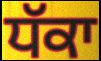
ਧੱਕਾ